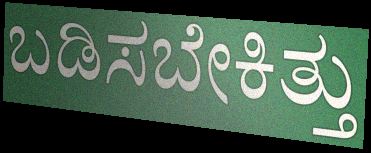
ಬಡಿಸಬೇಕಿತ್ತು